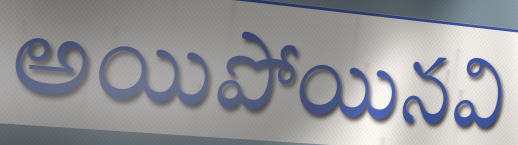
అయిపోయినవి